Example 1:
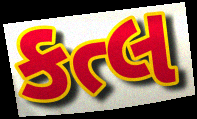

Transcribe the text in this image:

કત્લ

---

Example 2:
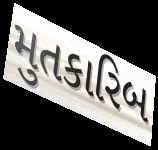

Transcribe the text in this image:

મુતકારિબ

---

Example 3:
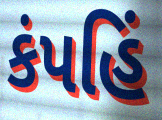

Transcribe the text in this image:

કંપહિં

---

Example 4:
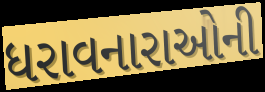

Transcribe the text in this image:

ધરાવનારાઓની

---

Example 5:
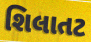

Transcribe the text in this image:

શિલાતટ